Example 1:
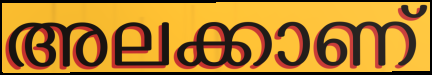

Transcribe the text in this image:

അലക്കാണ്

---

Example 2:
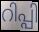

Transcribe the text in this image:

റിപ്പി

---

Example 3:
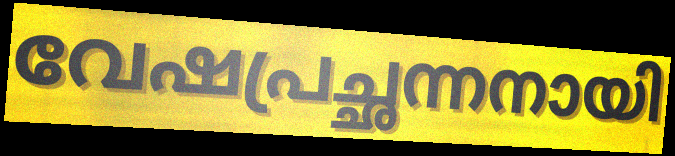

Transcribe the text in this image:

വേഷപ്രച്ഛന്നനായി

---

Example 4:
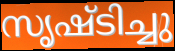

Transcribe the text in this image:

സൃഷ്ടിച്ചു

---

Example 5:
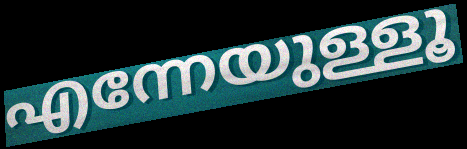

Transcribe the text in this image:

എന്നേയുള്ളൂ